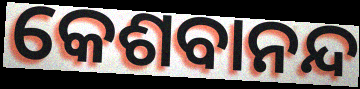
କେଶବାନନ୍ଦ